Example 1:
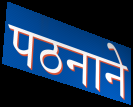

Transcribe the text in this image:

पठनाने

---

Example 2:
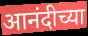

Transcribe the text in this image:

आनंदीच्या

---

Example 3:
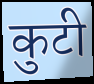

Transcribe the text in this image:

कुटी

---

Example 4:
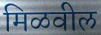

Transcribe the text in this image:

मिळवील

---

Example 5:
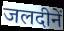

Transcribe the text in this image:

जलदीनें